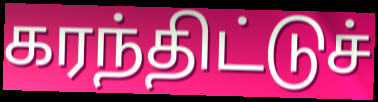
கரந்திட்டுச்